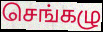
செங்கழு